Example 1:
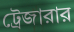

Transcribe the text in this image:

ট্রেজারার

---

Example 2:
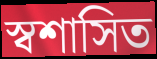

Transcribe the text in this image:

স্বশাসিত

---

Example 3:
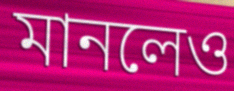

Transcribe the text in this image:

মানলেও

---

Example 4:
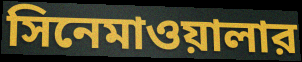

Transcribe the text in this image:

সিনেমাওয়ালার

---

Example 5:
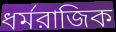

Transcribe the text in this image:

ধর্মরাজিক